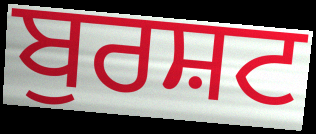
ਬੁਰਸ਼ਟ